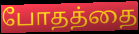
போதத்தை